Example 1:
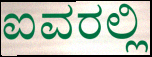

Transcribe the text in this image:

ಐವರಲ್ಲಿ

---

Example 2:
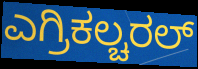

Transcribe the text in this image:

ಎಗ್ರಿಕಲ್ಚರಲ್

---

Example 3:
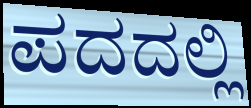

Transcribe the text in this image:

ಪದದಲ್ಲಿ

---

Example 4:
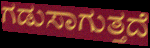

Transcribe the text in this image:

ಗಡುಸಾಗುತ್ತದೆ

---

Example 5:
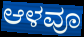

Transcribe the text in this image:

ಆಳವೂ